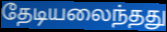
தேடியலைந்தது